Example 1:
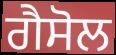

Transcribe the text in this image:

ਗੈਸੋਲ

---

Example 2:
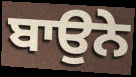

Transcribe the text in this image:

ਬਾਉਨੇ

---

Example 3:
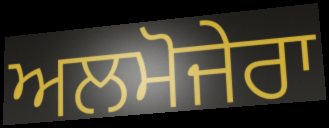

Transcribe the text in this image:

ਅਲਮੋਜੇਰਾ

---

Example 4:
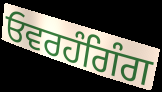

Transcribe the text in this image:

ਓਵਰਹੰਗਿੰਗ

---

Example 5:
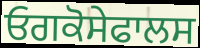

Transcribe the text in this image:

ਓਗਕੋਸੇਫਾਲਸ